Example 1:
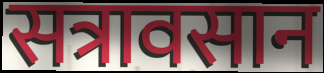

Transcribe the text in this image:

सत्रावसान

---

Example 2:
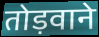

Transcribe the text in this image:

तोड़वाने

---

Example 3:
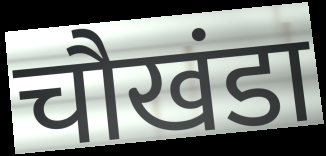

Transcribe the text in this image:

चौखंडा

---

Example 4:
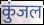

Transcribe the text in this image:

कुंजल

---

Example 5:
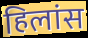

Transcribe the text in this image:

हिलांस